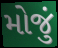
મોજું